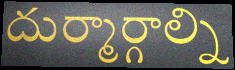
దుర్మార్గాల్ని